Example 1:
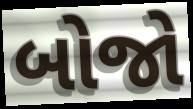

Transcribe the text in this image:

બોજો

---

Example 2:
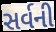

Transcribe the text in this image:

સર્વની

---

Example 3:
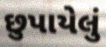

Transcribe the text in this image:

છુપાયેલું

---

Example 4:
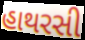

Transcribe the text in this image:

હાથરસી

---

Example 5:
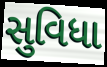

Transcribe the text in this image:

સુવિધા